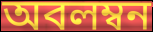
অবলম্বন